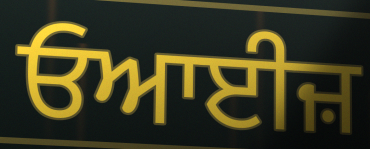
ਓਆਈਜ਼